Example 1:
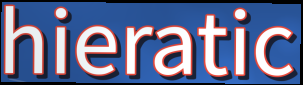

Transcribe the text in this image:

hieratic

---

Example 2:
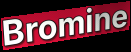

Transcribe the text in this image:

Bromine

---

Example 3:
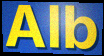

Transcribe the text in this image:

Alb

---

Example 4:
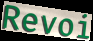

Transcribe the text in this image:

Revoi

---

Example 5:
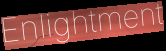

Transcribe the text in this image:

Enlightment